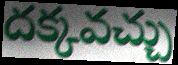
దక్కవచ్చు